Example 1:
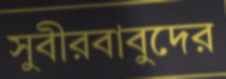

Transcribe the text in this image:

সুবীরবাবুদের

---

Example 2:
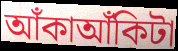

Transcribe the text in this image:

আঁকাআঁকিটা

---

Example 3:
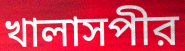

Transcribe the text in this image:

খালাসপীর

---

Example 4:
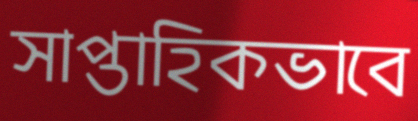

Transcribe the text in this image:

সাপ্তাহিকভাবে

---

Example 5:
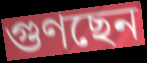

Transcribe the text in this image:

গুণছেন